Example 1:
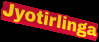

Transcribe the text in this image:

Jyotirlinga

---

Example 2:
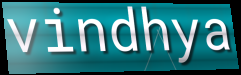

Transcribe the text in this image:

vindhya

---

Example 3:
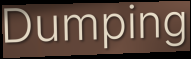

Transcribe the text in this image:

Dumping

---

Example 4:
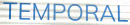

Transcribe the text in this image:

TEMPORAL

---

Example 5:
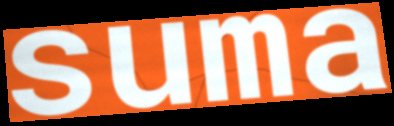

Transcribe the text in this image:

suma